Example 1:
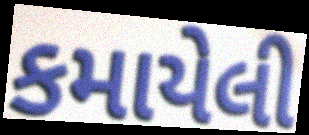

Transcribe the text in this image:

કમાયેલી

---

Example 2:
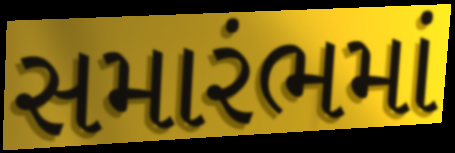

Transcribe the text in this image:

સમારંભમાં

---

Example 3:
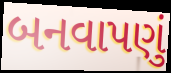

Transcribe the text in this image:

બનવાપણું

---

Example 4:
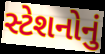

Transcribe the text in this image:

સ્ટેશનોનું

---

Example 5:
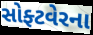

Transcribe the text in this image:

સોફ્ટવેરના